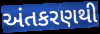
અંતકરણથી